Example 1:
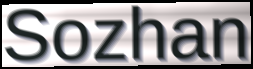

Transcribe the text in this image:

Sozhan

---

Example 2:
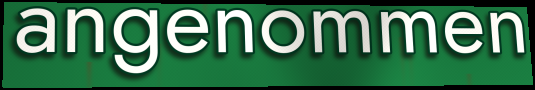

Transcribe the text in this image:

angenommen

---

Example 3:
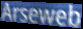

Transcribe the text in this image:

Arseweb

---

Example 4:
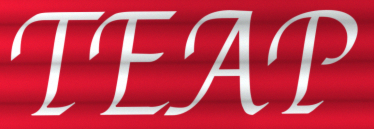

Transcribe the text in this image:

TEAP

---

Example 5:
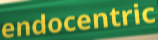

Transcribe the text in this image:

endocentric